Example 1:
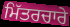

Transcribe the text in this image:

ਮਿੱਤਰਚਾਰੇ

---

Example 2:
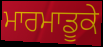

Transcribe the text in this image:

ਮਾਰਮਾਡੂਕੇ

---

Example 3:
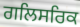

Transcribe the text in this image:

ਗਲਿਸਰਿਕ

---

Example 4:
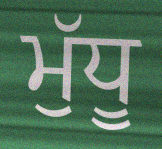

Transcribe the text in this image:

ਮੁੱਧੂ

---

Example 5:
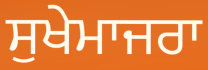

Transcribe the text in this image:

ਸੁਖੇਮਾਜਰਾ